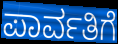
ಪಾರ್ವತಿಗೆ